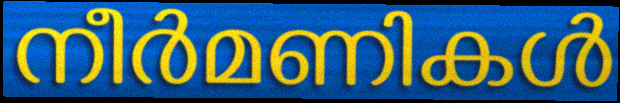
നീർമണികൾ